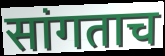
सांगताच